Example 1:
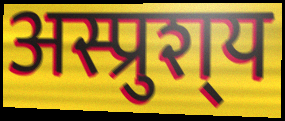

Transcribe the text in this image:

अस्प्रुश्य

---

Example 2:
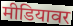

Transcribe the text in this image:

मीडियावर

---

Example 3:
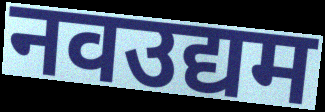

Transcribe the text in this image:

नवउद्यम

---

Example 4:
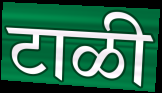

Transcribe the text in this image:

टाळी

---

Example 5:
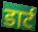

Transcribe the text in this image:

डार्ट